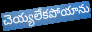
చెయ్యలేకపోయాను